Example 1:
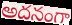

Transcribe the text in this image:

అదనంగా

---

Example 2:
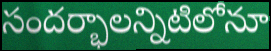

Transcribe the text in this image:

సందర్భాలన్నిటిలోనూ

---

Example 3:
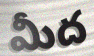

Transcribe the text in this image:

మీద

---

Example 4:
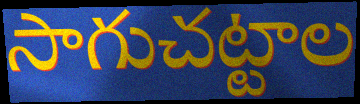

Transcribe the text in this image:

సాగుచట్టాల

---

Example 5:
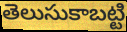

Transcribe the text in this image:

తెలుసుకాబట్టి